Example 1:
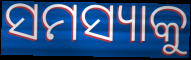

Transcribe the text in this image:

ସମସ୍ୟାକୁ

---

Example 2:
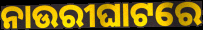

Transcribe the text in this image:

ନାଉରୀଘାଟରେ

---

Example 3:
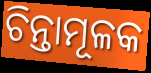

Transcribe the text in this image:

ଚିନ୍ତାମୂଳକ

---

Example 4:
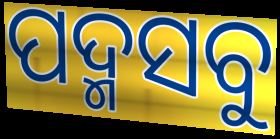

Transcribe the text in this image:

ପଦ୍ମସବୁ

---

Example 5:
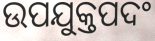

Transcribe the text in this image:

ଉପଯୁକ୍ତପଦଂ